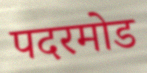
पदरमोड